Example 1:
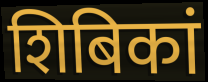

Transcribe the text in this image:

शिबिकां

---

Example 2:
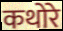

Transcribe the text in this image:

कथोरे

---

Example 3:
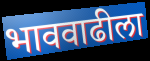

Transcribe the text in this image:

भाववाढीला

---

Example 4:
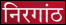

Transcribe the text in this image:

निरगांठ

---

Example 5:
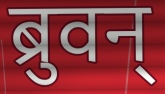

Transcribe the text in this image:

ब्रुवन्